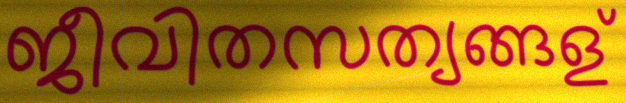
ജീവിതസത്യങ്ങള്